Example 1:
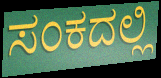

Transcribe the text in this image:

ಸಂಕದಲ್ಲಿ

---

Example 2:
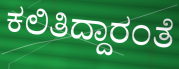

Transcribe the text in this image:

ಕಲಿತಿದ್ದಾರಂತೆ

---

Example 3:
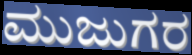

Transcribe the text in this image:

ಮುಜುಗರ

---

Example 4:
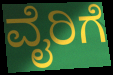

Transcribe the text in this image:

ವೈರಿಗೆ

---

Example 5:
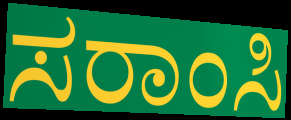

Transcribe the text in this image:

ಸರಾಂಸಿ